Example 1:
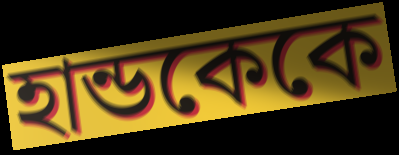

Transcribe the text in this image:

হান্ডকেকে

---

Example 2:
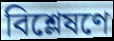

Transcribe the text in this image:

বিশ্লেষণে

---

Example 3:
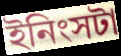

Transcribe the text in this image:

ইনিংসটা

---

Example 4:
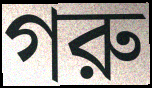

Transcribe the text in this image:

গরু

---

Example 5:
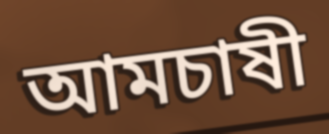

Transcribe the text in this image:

আমচাষী